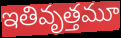
ఇతివృత్తమూ